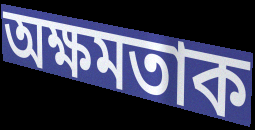
অক্ষমতাক